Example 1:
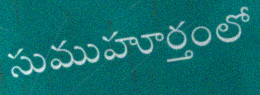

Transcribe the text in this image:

సుముహూర్తంలో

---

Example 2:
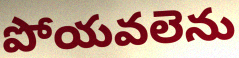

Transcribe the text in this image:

పోయవలెను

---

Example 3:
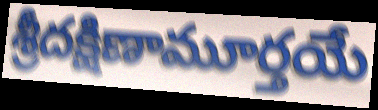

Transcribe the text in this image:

శ్రీదక్షిణామూర్తయే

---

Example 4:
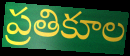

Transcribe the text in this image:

ప్రతికూల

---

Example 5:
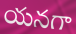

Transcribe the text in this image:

యనగా